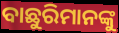
ବାଛୁରିମାନଙ୍କୁ